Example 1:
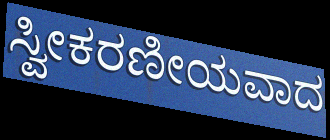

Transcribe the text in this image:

ಸ್ವೀಕರಣೀಯವಾದ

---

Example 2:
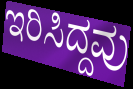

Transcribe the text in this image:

ಇರಿಸಿದ್ದವು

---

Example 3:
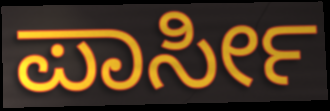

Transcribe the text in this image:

ಪಾರ್ಸೀ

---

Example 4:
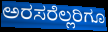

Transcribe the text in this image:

ಅರಸರೆಲ್ಲರಿಗೂ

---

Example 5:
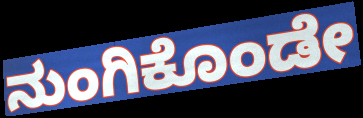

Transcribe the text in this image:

ನುಂಗಿಕೊಂಡೇ